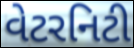
વેટરનિટી